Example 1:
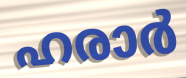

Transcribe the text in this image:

ഹരാർ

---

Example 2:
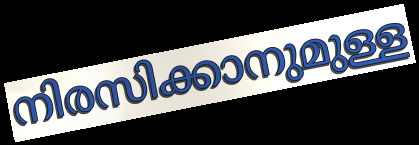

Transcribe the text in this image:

നിരസിക്കാനുമുള്ള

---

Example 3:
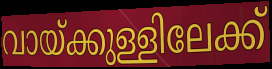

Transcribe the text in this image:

വായ്ക്കുള്ളിലേക്ക്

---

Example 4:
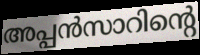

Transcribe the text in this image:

അപ്പൻസാറിന്റെ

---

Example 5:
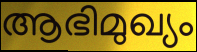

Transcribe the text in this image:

ആഭിമുഖ്യം